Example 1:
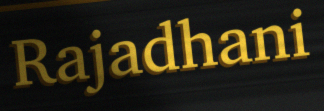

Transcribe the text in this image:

Rajadhani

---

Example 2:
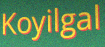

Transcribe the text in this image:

Koyilgal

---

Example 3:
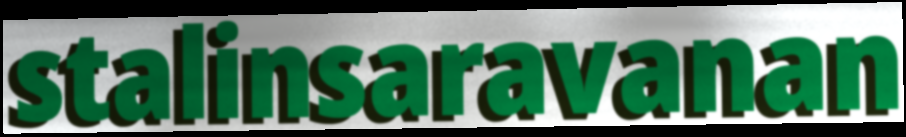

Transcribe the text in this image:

stalinsaravanan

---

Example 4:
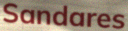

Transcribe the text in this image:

Sandares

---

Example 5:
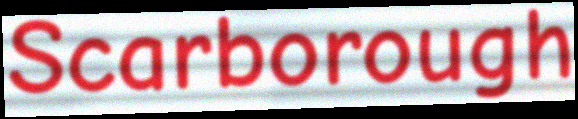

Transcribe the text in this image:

Scarborough